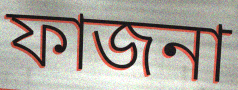
ফাজনা